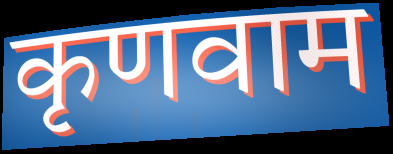
कृणवाम